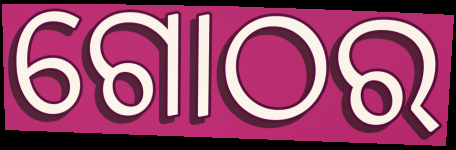
ଗୋଠର